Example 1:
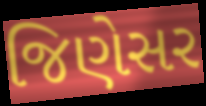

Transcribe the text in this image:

જિણેસર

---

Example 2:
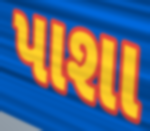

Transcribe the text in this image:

પાશા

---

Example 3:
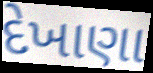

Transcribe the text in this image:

દેખાણા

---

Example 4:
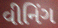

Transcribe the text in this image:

વીનિંગ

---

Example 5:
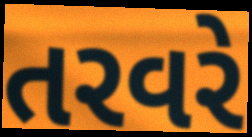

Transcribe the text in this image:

તરવરે